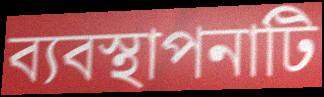
ব্যবস্থাপনাটি